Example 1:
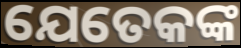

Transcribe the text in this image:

ଯେତେକଙ୍କ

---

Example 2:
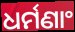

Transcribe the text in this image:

ଧର୍ମଣାଂ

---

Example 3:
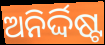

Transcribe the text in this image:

ଅନିର୍ଦ୍ଦିଷ୍ଟ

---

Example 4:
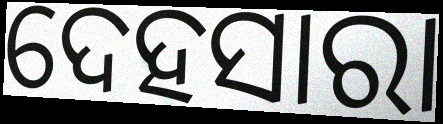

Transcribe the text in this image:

ଦେହସାରା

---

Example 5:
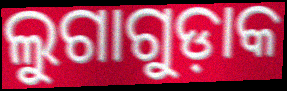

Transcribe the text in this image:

ଲୁଗାଗୁଡ଼ାକ